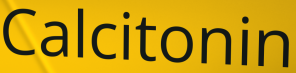
Calcitonin